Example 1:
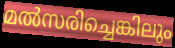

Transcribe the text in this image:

മൽസരിച്ചെങ്കിലും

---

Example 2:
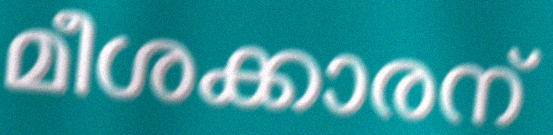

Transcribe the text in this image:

മീശക്കാരന്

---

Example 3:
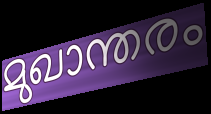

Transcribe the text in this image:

മുഖാന്തരം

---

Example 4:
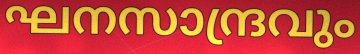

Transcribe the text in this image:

ഘനസാന്ദ്രവും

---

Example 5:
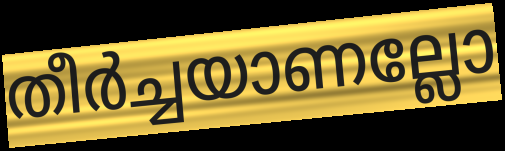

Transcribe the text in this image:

തീർച്ചയാണല്ലോ